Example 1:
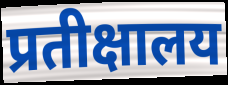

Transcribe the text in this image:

प्रतीक्षालय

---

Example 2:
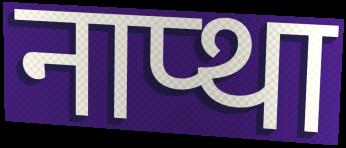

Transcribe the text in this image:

नाप्था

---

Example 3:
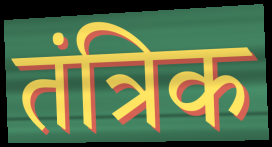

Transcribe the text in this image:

तंत्रिक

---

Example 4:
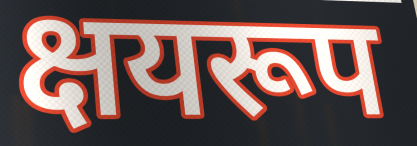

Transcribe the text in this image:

क्षयरूप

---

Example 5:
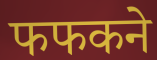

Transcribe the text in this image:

फफकने